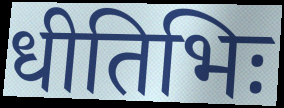
धीतिभिः